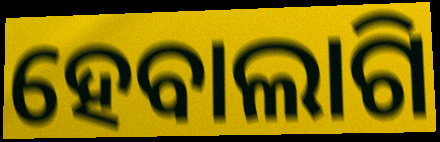
ହେବାଲାଗି